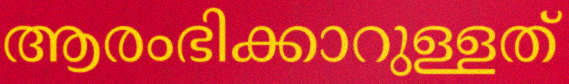
ആരംഭിക്കാറുള്ളത്